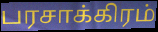
பரசாக்கிரம்